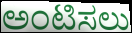
ಅಂಟಿಸಲು